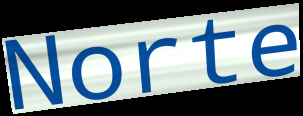
Norte